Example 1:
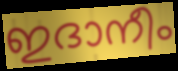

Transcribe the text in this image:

ഇദാനീം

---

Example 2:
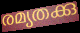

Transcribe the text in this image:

രമ്യതക്കു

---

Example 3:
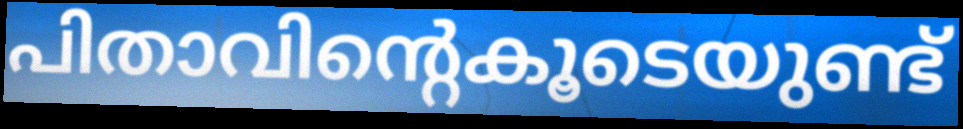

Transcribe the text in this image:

പിതാവിന്റെകൂടെയുണ്ട്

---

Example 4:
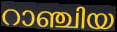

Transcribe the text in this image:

റാഞ്ചിയ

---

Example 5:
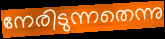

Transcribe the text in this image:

നേരിടുന്നതെന്നു